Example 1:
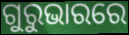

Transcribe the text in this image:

ଗୁରୁଭାରରେ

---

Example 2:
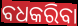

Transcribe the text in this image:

ବଧକରିବା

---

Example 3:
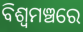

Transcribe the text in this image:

ବିଶ୍ୱମଞ୍ଚରେ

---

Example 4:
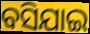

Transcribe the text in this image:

ବସିଯାଇ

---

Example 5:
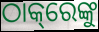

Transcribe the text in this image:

ଠାକ୍‌ରେଙ୍କୁ